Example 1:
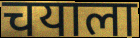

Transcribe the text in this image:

चयाला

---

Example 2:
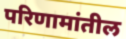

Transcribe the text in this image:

परिणामांतील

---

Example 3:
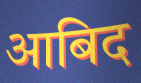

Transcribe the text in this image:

आबिद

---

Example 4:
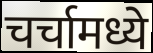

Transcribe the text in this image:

चर्चामध्ये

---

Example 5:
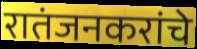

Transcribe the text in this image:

रातंजनकरांचे